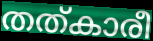
തത്കാരീ